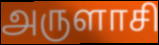
அருளாசி